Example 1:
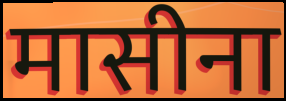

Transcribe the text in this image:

मासीना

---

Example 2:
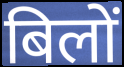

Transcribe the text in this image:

बिलों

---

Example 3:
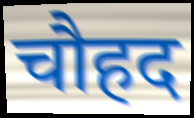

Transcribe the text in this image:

चौहद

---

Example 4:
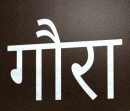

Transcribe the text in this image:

गौरा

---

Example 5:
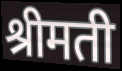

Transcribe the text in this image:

श्रीमती